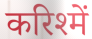
करिश्में